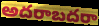
అదరాబదరా